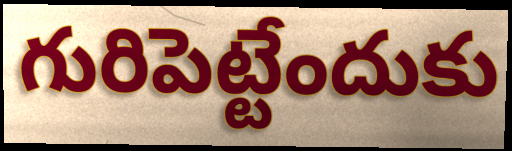
గురిపెట్టేందుకు